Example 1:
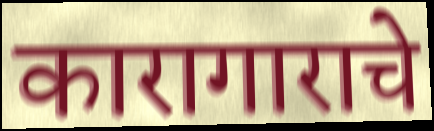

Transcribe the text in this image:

कारागाराचे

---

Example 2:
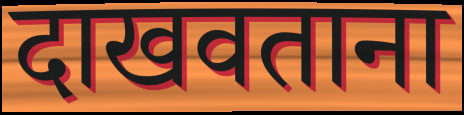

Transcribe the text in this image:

दाखवताना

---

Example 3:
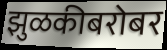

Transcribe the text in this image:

झुळकीबरोबर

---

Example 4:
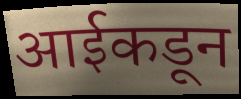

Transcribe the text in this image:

आईकडून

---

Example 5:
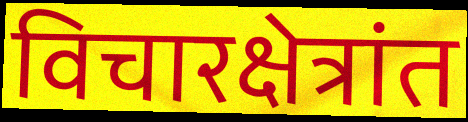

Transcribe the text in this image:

विचारक्षेत्रांत